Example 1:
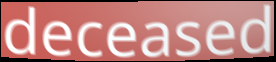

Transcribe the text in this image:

deceased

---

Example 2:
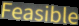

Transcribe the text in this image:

Feasible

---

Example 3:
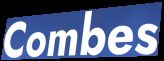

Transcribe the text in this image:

Combes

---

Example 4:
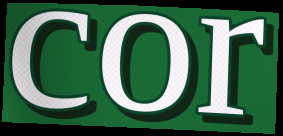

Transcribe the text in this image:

cor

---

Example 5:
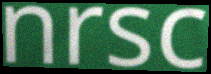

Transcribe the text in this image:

nrsc